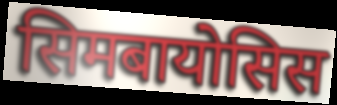
सिमबायोसिस